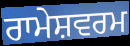
ਰਾਮੇਸ਼ਵਰਮ